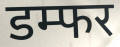
डम्फर